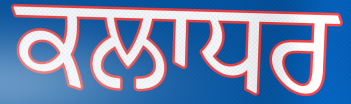
ਕਲਾਧਰ